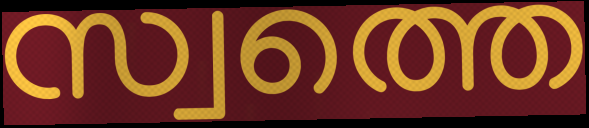
സ്വത്തെ